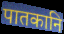
पातकानि